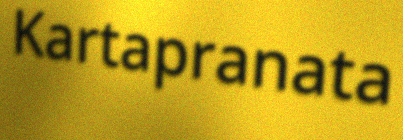
Kartapranata